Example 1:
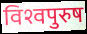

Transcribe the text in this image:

विश्वपुरुष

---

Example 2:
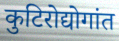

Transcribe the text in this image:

कुटिरोद्योगांत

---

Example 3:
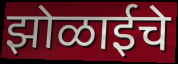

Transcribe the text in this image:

झोळाईचे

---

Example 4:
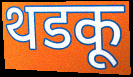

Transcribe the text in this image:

थडकू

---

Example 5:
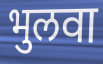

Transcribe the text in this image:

भुलवा